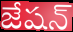
జేషన్